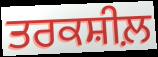
ਤਰਕਸ਼ੀਲ਼